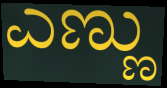
ಎಣ್ಣು